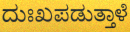
ದುಃಖಪಡುತ್ತಾಳೆ